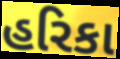
હરિકા